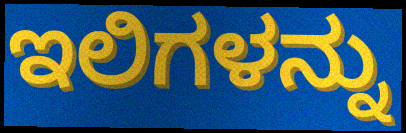
ಇಲಿಗಳನ್ನು